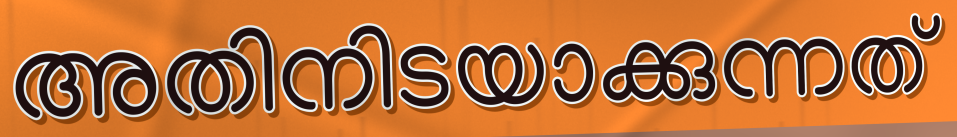
അതിനിടയാക്കുന്നത്